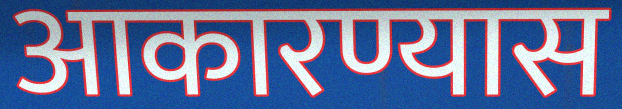
आकारण्यास